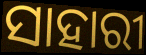
ସାହାରୀ